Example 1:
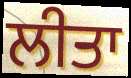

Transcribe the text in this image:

ਲੀਤਾ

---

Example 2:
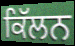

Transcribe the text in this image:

ਕਿੱਲਨ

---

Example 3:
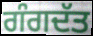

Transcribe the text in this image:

ਗੰਗਦੱਤ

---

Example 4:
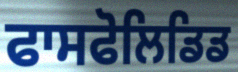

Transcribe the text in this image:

ਫਾਸਫੋਲਿਡਿਡ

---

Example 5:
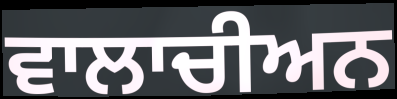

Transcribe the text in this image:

ਵਾਲਾਚੀਅਨ